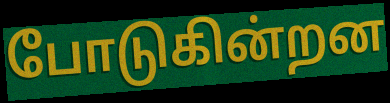
போடுகின்றன